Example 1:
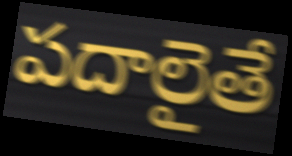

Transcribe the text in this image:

పదాలైతే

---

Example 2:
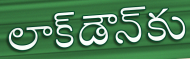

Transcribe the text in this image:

లాక్‌డౌన్‌కు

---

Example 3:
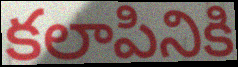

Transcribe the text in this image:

కలాపినికి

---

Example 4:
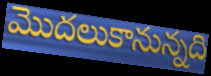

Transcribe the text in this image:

మొదలుకానున్నది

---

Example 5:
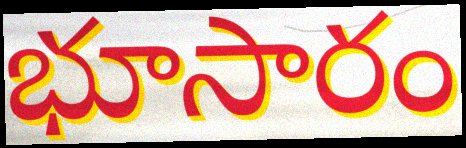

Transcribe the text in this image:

భూసారం